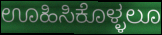
ಊಹಿಸಿಕೊಳ್ಳಲೂ